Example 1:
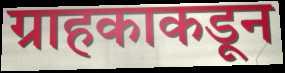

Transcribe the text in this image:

ग्राहकाकडून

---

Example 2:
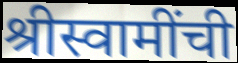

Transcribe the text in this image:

श्रीस्वामींची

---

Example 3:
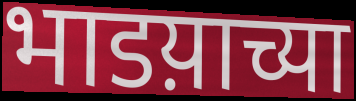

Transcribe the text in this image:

भाडय़ाच्या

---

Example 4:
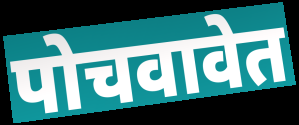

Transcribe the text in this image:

पोचवावेत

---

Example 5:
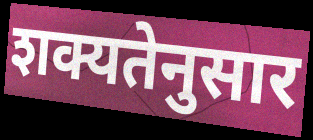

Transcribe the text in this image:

शक्यतेनुसार